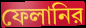
ফেলানির